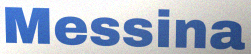
Messina